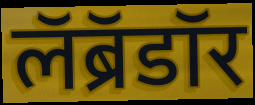
लॅब्रॅडॉर